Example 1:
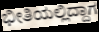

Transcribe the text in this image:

ಭೀತಿಯಲ್ಲಿದ್ದಾಗ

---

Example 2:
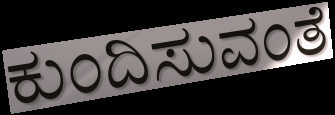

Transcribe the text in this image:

ಕುಂದಿಸುವಂತೆ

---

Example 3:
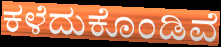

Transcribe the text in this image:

ಕಳೆದುಕೊಂಡಿವೆ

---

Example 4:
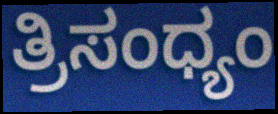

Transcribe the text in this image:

ತ್ರಿಸಂಧ್ಯಂ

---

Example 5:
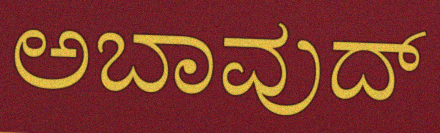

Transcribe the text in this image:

ಅಬಾವುದ್